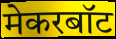
मेकरबॉट